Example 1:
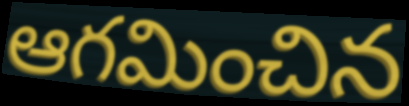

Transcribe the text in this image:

ఆగమించిన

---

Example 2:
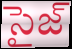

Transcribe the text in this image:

సైజ్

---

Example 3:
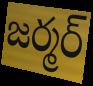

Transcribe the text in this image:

జర్మర్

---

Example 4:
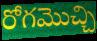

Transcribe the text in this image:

రోగమొచ్చి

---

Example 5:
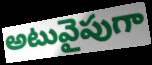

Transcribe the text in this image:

అటువైపుగా